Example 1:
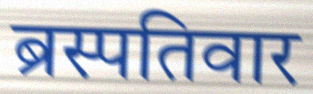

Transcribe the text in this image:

ब्रस्पतिवार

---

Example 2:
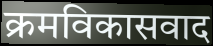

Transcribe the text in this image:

क्रमविकासवाद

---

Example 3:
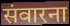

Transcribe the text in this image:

संवारना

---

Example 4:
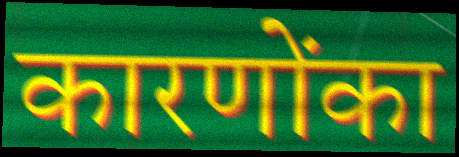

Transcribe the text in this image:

कारणोंका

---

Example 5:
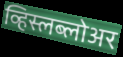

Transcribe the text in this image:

व्हिस्लब्लोअर